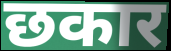
छकार